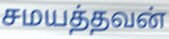
சமயத்தவன்